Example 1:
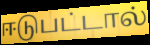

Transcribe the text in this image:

ஈடுபட்டால்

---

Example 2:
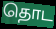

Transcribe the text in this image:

தொட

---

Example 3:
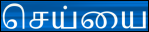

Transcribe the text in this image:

செய்யை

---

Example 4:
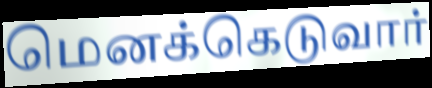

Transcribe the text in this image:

மெனக்கெடுவார்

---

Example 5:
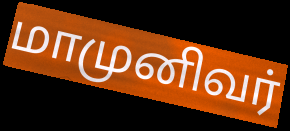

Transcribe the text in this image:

மாமுனிவர்